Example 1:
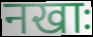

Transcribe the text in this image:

नखाः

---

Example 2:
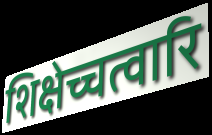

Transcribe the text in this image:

शिक्षेच्चत्वारि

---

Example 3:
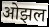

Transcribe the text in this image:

ओझल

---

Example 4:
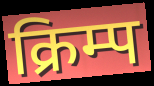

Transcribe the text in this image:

क्रिम्प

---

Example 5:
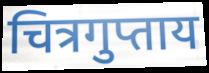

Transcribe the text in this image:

चित्रगुप्ताय